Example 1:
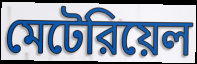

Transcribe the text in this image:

মেটেরিয়েল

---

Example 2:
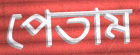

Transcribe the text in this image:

পেতাম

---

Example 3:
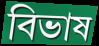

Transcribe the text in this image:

বিভাষ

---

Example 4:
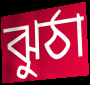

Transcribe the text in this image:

ঝুঠা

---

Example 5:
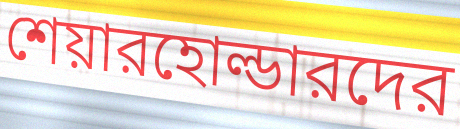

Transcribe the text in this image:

শেয়ারহোল্ডারদের